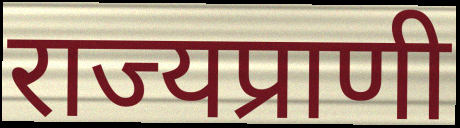
राज्यप्राणी